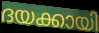
ദയക്കായി